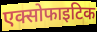
एक्सोफाइटिक